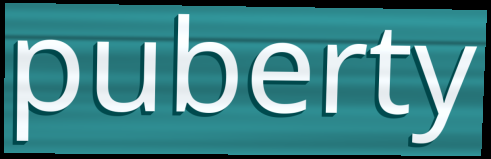
puberty